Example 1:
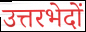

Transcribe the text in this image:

उत्तरभेदों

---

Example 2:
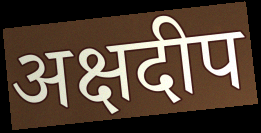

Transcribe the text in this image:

अक्षदीप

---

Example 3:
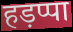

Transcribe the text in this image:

हड़प्पा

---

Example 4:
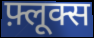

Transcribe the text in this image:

फ़्लूक्स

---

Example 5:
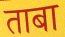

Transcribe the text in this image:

ताबा